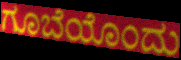
ಗೂಬೆಯೊಂದು